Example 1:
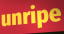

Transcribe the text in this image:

unripe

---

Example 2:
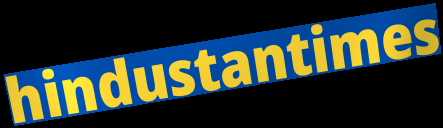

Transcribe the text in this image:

hindustantimes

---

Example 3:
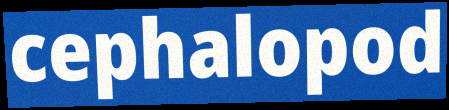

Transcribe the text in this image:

cephalopod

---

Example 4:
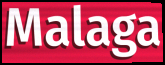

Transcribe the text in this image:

Malaga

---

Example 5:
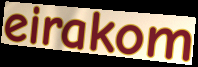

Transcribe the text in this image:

eirakom